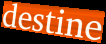
destine